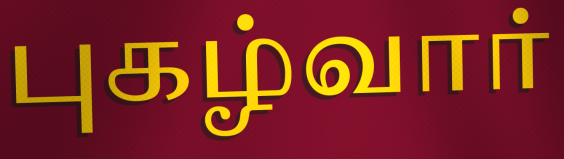
புகழ்வார்